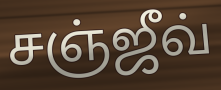
சஞ்ஜீவ்